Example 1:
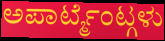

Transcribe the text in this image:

ಅಪಾರ್ಟ್ಮೆಂಟ್ಗಳು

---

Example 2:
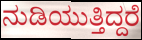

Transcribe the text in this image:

ನುಡಿಯುತ್ತಿದ್ದರೆ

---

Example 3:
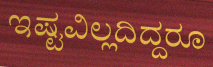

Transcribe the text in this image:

ಇಷ್ಟವಿಲ್ಲದಿದ್ದರೂ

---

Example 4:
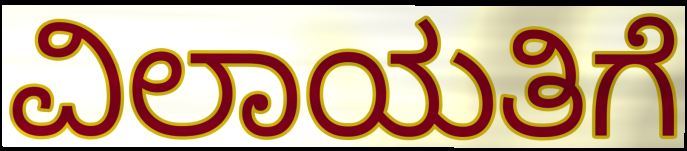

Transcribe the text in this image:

ವಿಲಾಯತಿಗೆ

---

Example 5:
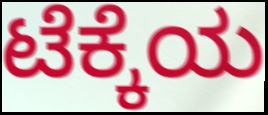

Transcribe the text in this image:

ಟೆಕ್ಕೆಯ